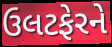
ઉલટફેરને